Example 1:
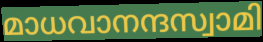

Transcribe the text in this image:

മാധവാനന്ദസ്വാമി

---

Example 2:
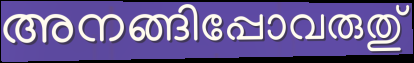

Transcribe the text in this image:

അനങ്ങിപ്പോവരുതു്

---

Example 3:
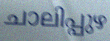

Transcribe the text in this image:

ചാലിപ്പുഴ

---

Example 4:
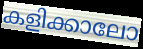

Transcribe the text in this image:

കളിക്കാലോ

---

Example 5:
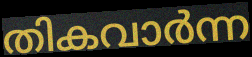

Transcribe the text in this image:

തികവാർന്ന